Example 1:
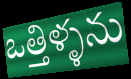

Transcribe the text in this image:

ఒత్తిళ్ళను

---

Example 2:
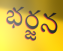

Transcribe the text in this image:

భర్జన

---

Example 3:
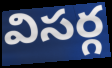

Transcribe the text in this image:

విసర్గ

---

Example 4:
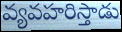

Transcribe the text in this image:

వ్యవహరిస్తాడు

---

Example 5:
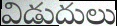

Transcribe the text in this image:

విడుదులు